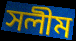
সলীম